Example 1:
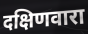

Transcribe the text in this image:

दक्षिणवारा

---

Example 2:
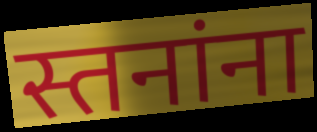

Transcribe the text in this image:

स्तनांना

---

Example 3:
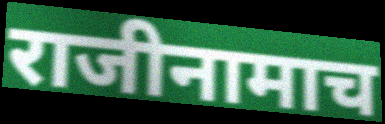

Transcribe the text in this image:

राजीनामाच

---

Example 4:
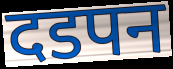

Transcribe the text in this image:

दडपन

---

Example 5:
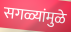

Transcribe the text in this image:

सगळ्यांमुळे